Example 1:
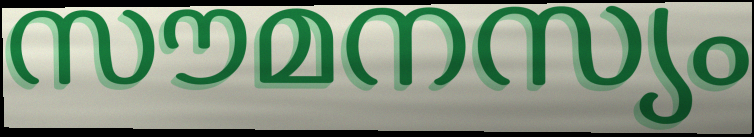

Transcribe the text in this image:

സൗമനസ്യം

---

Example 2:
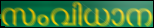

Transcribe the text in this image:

സംവിധാന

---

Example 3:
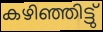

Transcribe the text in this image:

കഴിഞ്ഞിട്ടു്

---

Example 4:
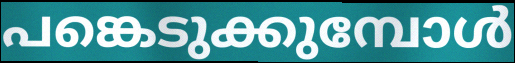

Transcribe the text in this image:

പങ്കെടുക്കുമ്പോൾ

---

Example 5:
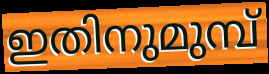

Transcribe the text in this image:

ഇതിനുമുമ്പ്